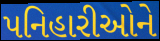
પનિહારીઓને